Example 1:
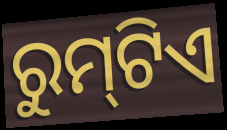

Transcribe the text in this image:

ରୁମ୍‌ଟିଏ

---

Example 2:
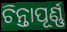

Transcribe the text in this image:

ଚିନ୍ତାପୂର୍ଣ୍ଣ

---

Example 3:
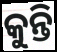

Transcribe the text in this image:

କୁନ୍ତି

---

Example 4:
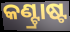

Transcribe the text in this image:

କଣ୍ଟ୍ରାଷ୍ଟ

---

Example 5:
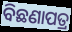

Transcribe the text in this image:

ବିଛଣାପତ୍ର